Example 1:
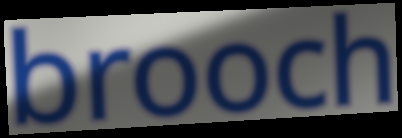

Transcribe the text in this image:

brooch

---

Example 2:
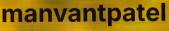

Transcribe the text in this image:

manvantpatel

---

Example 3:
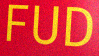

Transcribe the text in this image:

FUD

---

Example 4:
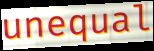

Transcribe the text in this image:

unequal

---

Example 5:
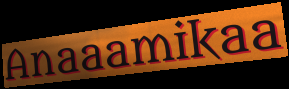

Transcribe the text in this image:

Anaaamikaa